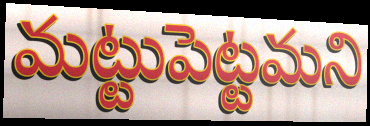
మట్టుపెట్టమని